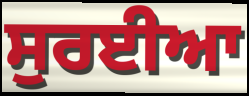
ਸੁਰਈਆ